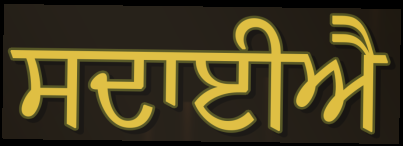
ਸਦਾਈਐ